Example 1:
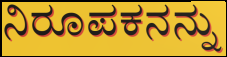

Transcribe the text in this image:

ನಿರೂಪಕನನ್ನು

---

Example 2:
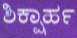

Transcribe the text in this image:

ಶಿಕ್ಷಾರ್ಹ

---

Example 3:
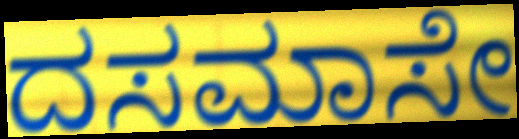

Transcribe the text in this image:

ದಸಮಾಸೇ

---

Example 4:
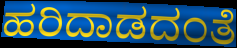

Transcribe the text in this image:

ಹರಿದಾಡದಂತೆ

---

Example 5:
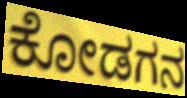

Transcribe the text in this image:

ಕೋಡಗನ